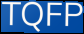
TQFP